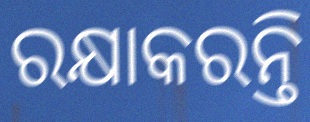
ରକ୍ଷାକରନ୍ତି